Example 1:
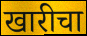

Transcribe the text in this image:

खारीचा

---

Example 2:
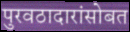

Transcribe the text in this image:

पुरवठादारांसोबत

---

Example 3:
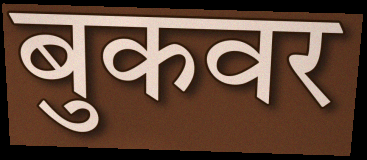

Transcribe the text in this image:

बुकवर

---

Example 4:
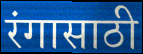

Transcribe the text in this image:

रंगासाठी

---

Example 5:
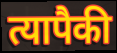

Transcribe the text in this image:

त्यापैकी